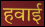
हवाई